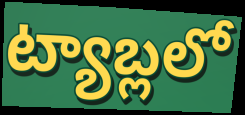
ట్యాబ్లలో